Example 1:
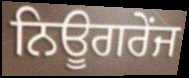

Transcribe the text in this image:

ਨਿਊਗਰੇਂਜ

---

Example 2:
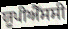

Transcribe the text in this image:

ਯੂਪੀਐੱਸਸੀ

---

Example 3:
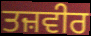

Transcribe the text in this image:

ਤਜ਼ਵੀਰ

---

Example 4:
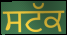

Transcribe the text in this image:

ਸਟੱਕ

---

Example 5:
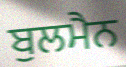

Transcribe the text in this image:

ਬੁਲਮੈਨ